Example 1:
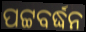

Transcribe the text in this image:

ପଟ୍ଟବର୍ଦ୍ଧନ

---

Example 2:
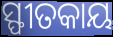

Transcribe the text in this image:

ସ୍ଫୀତକାୟ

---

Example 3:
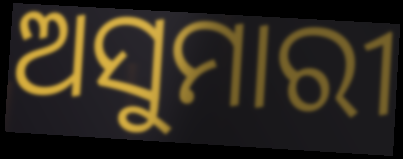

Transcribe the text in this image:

ଅସୁମାରୀ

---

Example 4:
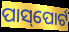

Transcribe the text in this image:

ପାସ୍‌ପୋର୍ଟ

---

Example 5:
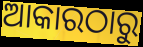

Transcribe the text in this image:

ଆକାରଠାରୁ